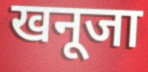
खनूजा